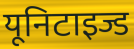
यूनिटाइज्ड